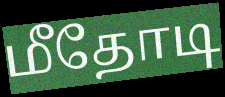
மீதோடி